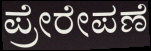
ಪ್ರೇರೇಪಣೆ